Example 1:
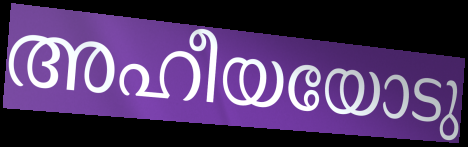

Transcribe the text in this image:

അഹീയയോടു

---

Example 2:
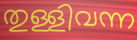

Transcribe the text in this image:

തുള്ളിവന്ന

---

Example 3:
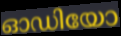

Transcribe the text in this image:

ഓഡിയോ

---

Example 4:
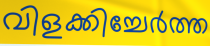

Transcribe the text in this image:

വിളക്കിച്ചേർത്ത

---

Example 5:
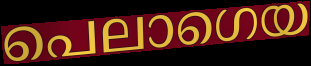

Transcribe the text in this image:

പെലാഗെയ